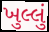
ખુલ્લું